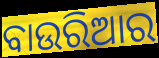
ବାଉରିଆର